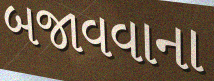
બજાવવાના